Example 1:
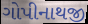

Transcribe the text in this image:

ગોપીનાથજી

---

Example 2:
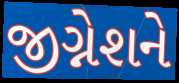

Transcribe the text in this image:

જીગ્નેશને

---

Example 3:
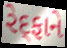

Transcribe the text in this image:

રેદ્ફાને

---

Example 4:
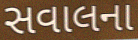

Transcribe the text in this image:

સવાલના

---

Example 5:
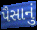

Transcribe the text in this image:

પૈસાનું